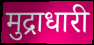
मुद्राधारी